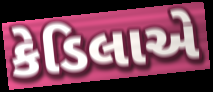
કેડિલાએ